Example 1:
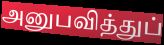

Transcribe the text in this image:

அனுபவித்துப்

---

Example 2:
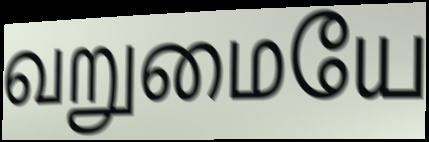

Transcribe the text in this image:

வறுமையே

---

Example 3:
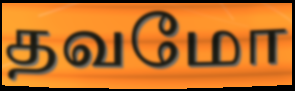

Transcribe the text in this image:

தவமோ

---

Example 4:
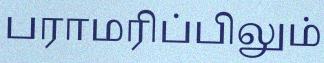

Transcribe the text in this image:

பராமரிப்பிலும்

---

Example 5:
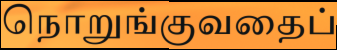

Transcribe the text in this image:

நொறுங்குவதைப்